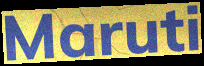
Maruti